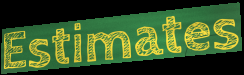
Estimates